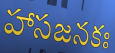
హాసజనకః